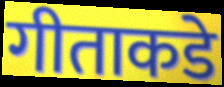
गीताकडे